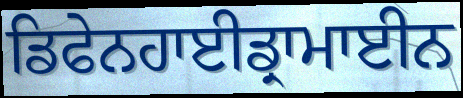
ਡਿਫੇਨਹਾਈਡ੍ਰਾਮਾਈਨ